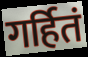
गर्हितं